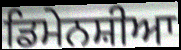
ਡਿਮੇਨਸ਼ੀਆ